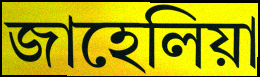
জাহেলিয়া